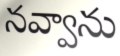
నవ్వాను